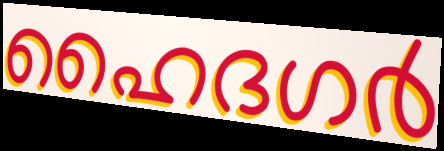
ഹൈദഗർ